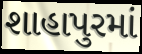
શાહાપુરમાં